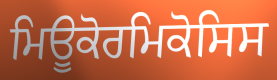
ਮਿਊਕੋਰਮਿਕੋਸਿਸ